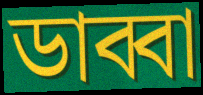
ডাব্বা